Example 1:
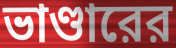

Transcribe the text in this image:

ভাণ্ডারের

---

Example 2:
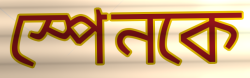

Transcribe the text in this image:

স্পেনকে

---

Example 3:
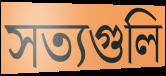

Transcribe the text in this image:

সত্যগুলি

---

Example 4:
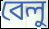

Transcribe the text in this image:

বেলু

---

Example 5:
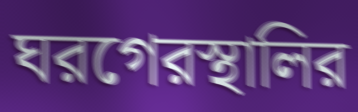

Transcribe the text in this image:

ঘরগেরস্থালির